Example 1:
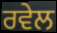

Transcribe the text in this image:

ਰਵੇਲ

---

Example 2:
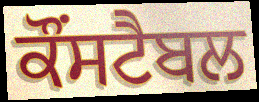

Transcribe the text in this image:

ਕੌਂਸਟੈਬਲ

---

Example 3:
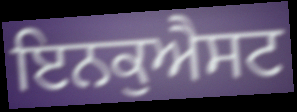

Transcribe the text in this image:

ਇਨਕੁਐਸਟ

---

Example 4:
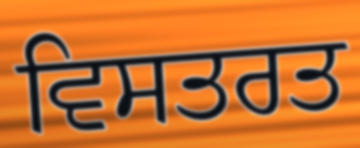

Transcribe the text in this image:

ਵਿਸਤਰਤ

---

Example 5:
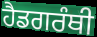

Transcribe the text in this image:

ਹੈਡਗਰੰਥੀ